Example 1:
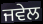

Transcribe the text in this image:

ਜਵੇਲ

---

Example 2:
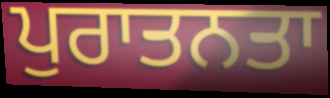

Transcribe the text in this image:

ਪੁਰਾਤਨਤਾ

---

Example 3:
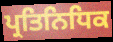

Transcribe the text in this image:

ਪ੍ਰਤਿਨਿਧਿਕ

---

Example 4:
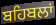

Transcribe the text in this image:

ਬਹਿਬਲਾਂ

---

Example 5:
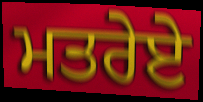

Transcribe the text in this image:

ਮਤਰੇਏ